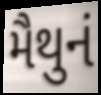
મૈથુનં